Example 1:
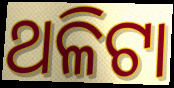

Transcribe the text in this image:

ଥଳିଟା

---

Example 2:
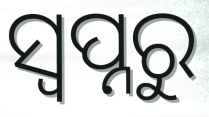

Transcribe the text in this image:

ସ୍ବପ୍ନରୁ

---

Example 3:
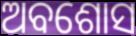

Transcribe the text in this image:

ଅବଶୋସ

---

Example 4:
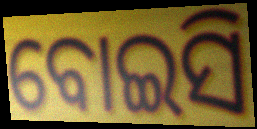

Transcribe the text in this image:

ବୋଇସି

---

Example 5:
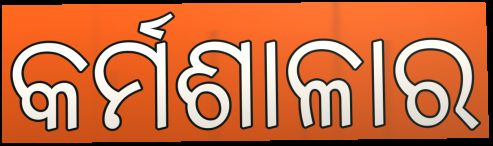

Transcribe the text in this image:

କର୍ମଶାଳାର